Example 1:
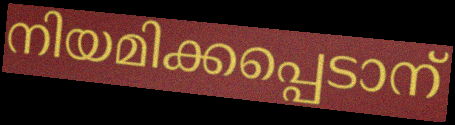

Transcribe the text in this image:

നിയമിക്കപ്പെടാന്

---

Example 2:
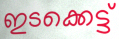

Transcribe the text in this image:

ഇടക്കെട്ട്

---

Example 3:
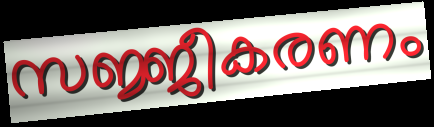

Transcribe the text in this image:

സജ്ജീകരണം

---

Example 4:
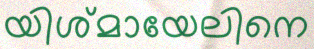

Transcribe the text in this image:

യിശ്മായേലിനെ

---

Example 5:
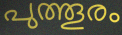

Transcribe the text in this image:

പുത്തൂരം